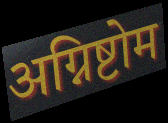
अग्निष्टोम